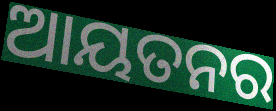
ଆୟତନର